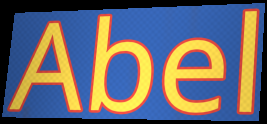
Abel